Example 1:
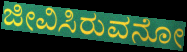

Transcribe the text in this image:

ಜೀವಿಸಿರುವನೋ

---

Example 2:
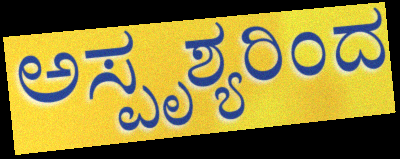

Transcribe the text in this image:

ಅಸ್ಪೃಶ್ಯರಿಂದ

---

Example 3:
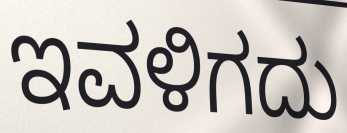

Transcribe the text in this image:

ಇವಳಿಗದು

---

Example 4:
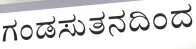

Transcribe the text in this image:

ಗಂಡಸುತನದಿಂದ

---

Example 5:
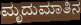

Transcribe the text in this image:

ಮೃದುಮಾತಿನ